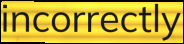
incorrectly